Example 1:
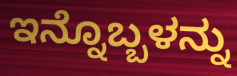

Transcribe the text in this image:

ಇನ್ನೊಬ್ಬಳನ್ನು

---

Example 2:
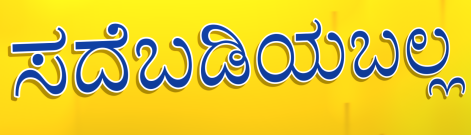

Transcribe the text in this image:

ಸದೆಬಡಿಯಬಲ್ಲ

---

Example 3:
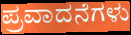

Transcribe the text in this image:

ಪ್ರವಾದನೆಗಳು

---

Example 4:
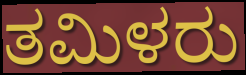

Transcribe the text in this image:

ತಮಿಳರು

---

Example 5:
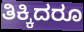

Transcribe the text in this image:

ತಿಕ್ಕಿದರೂ